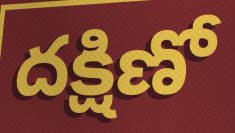
దక్షిణో